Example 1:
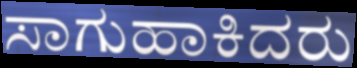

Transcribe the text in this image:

ಸಾಗುಹಾಕಿದರು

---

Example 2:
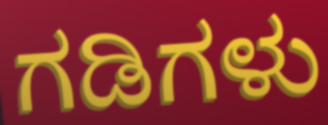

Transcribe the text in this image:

ಗಡಿಗಳು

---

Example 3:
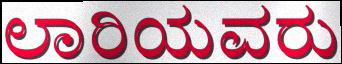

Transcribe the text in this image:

ಲಾರಿಯವರು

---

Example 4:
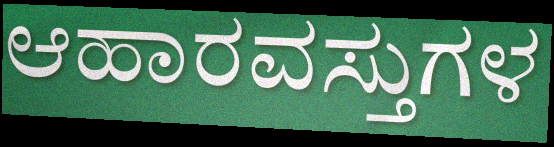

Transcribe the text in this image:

ಆಹಾರವಸ್ತುಗಳ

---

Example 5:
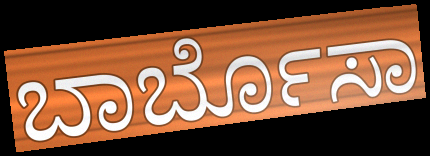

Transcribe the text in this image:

ಬಾರ್ಬೊಸಾ